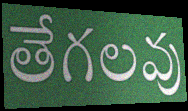
తేగలవు